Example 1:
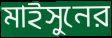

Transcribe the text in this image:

মাইসুনের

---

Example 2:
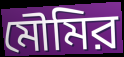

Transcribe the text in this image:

মৌমির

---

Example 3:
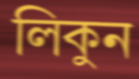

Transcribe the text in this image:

লিকুন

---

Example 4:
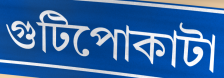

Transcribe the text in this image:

গুটিপোকাটা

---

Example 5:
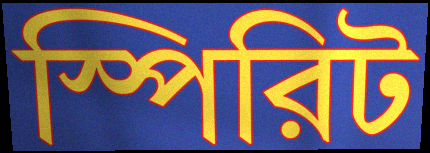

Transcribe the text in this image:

স্পিরিট